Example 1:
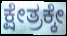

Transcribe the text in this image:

ಕ್ಷೇತ್ರಕ್ಕೇ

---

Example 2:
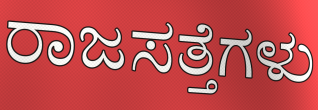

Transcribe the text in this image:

ರಾಜಸತ್ತೆಗಳು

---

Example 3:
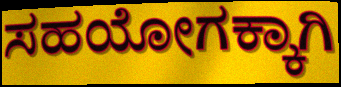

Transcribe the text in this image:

ಸಹಯೋಗಕ್ಕಾಗಿ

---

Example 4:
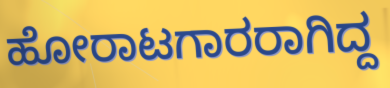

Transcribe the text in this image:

ಹೋರಾಟಗಾರರಾಗಿದ್ದ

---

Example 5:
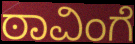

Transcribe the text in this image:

ಠಾವಿಂಗೆ